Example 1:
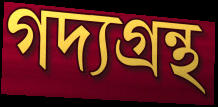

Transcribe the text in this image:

গদ্যগ্রন্থ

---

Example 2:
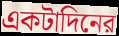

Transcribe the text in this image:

একটাদিনের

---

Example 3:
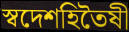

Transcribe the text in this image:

স্বদেশহিতৈষী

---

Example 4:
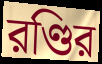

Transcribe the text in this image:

রণ্ডির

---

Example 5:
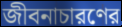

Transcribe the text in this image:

জীবনাচারণের